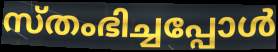
സ്തംഭിച്ചപ്പോൾ